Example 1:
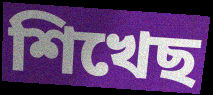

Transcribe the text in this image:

শিখেছ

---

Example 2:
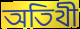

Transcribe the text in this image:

অতিথী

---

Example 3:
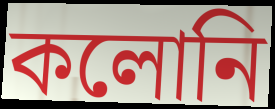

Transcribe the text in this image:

কলোনি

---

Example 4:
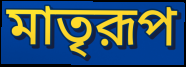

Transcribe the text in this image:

মাতৃরূপ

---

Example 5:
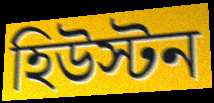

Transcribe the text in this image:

হিউস্টন